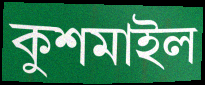
কুশমাইল